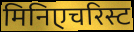
मिनिएचरिस्ट